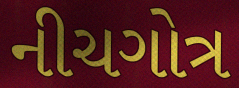
નીચગોત્ર